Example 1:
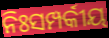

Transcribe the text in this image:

ନିଃସମ୍ପର୍କୀୟ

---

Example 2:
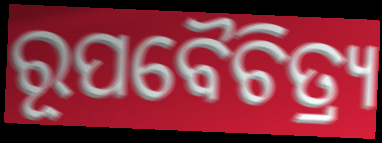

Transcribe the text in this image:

ରୂପବୈଚିତ୍ର୍ୟ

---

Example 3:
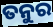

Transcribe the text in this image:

ତନୁର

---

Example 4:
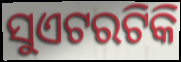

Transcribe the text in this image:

ସୁଏଟରଟିକି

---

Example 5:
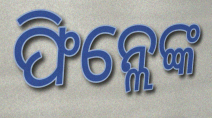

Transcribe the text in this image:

ଫିନ୍ଲେଙ୍କ